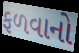
ફળવાનો